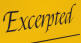
Excerpted